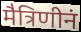
मैत्रिणीनं